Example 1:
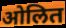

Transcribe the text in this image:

ओलित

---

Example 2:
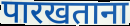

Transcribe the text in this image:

पारखताना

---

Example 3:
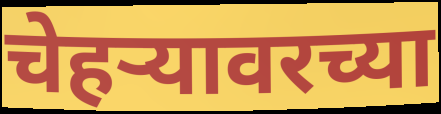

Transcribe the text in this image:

चेहर्‍यावरच्या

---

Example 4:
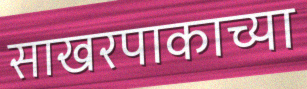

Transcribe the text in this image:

साखरपाकाच्या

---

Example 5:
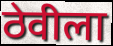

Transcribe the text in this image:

ठेवीला